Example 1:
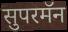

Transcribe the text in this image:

सुपरमॅन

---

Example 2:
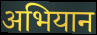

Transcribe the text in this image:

अभियान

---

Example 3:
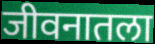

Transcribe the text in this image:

जीवनातला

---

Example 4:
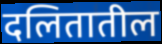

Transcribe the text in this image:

दलितातील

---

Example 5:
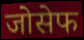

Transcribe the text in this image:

जोसेफ